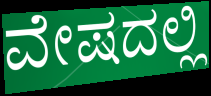
ವೇಷದಲ್ಲಿ